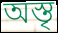
অস্তৃ